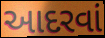
આદરવાં